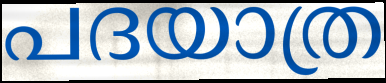
പദയാത്ര